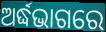
ଅର୍ଦ୍ଧଭାଗରେ